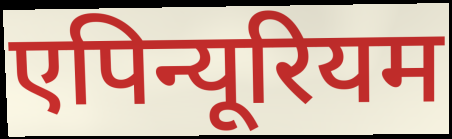
एपिन्यूरियम